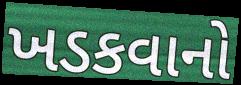
ખડકવાનો